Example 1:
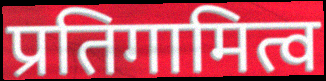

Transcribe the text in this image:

प्रतिगामित्व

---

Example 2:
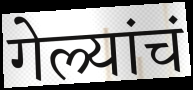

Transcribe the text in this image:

गेल्यांचं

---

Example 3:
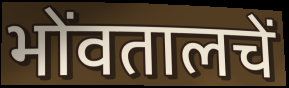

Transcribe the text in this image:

भोंवतालचें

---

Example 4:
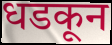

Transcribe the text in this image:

धडकून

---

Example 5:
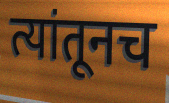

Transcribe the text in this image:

त्यांतूनच